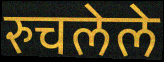
रुचलेले